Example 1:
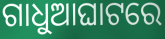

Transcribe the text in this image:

ଗାଧୁଆଘାଟରେ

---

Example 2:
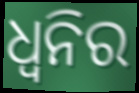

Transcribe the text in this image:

ଧ୍ୱନିର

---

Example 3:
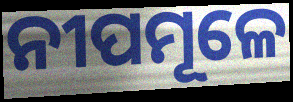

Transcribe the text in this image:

ନୀପମୂଳେ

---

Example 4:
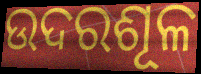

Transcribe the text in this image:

ଉଦରଶୂଳ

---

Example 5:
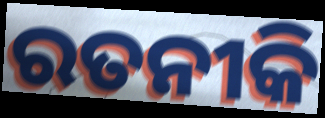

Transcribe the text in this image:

ରତନୀକି